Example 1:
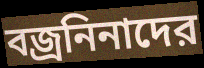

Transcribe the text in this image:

বজ্রনিনাদের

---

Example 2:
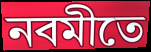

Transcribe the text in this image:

নবমীতে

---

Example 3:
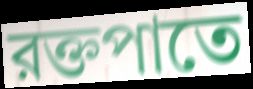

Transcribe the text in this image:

রক্তপাতে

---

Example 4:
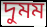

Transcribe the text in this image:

দুমম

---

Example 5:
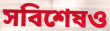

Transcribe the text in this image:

সবিশেষও